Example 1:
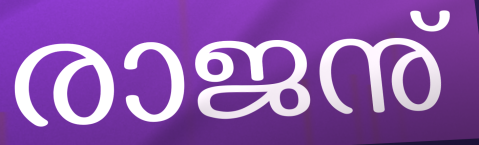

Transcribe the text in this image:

രാജനു്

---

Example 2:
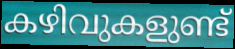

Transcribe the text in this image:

കഴിവുകളുണ്ട്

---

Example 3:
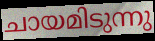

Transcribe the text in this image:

ചായമിടുന്നു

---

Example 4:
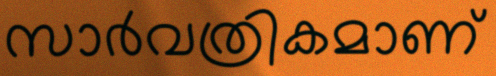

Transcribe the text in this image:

സാർവത്രികമാണ്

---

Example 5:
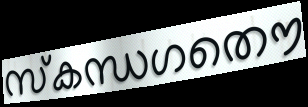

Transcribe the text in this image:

സ്കന്ധഗതൌ